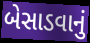
બેસાડવાનું